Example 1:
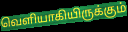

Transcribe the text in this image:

வெளியாகியிருக்கும்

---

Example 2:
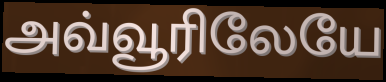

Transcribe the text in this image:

அவ்வூரிலேயே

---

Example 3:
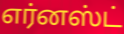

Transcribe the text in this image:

எர்னஸ்ட்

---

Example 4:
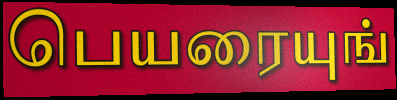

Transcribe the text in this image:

பெயரையுங்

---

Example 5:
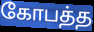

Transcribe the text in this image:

கோபத்த